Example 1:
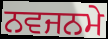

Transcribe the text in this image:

ਨਵਜਨਮੇ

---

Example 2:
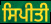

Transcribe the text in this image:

ਸਿਪੀਤੀ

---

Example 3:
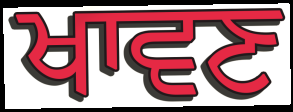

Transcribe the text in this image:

ਖਾਵਣ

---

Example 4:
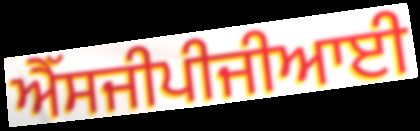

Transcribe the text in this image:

ਐੱਸਜੀਪੀਜੀਆਈ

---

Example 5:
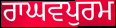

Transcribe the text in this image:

ਰਾਘਵਪੁਰਮ